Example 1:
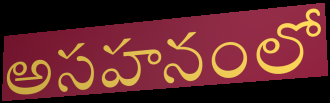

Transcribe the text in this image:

అసహనంలో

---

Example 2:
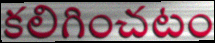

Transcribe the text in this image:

కలిగించటం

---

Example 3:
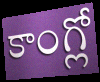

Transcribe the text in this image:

కాంగ్లో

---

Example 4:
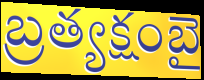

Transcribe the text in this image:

బ్రత్యక్షంబై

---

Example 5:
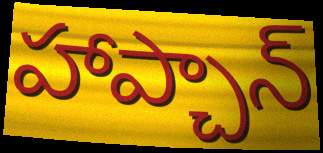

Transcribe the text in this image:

హాప్చాన్